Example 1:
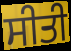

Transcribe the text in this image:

ਸੀਤੀ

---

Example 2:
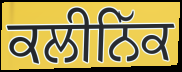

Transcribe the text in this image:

ਕਲੀਨਿੱਕ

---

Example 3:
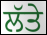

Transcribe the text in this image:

ਲੱਤੇ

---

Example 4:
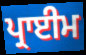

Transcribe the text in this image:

ਪ੍ਰਾਈਮ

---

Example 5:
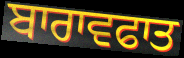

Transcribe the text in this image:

ਬਾਰਾਵਫਾਤ